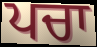
ਪਚਾ